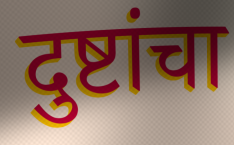
दुष्टांचा